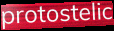
protostelic